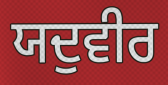
ਯਦੁਵੀਰ